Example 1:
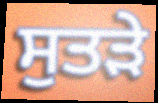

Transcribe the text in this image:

ਸੁਤੜੇ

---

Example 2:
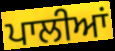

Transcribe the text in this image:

ਪਾਲੀਆਂ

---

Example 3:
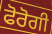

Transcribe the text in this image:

ਫੋਰੋਗੀ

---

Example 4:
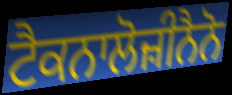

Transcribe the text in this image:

ਟੈਕਨਾਲੋਜ਼ੀਨੈਨੋ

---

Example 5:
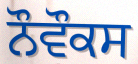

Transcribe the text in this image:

ਨੌਵੌਕਸ